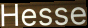
Hesse